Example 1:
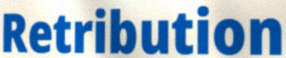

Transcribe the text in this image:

Retribution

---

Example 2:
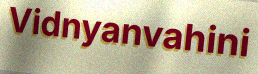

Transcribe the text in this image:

Vidnyanvahini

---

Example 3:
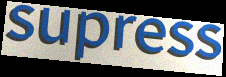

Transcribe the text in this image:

supress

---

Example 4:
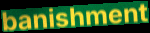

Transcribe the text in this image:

banishment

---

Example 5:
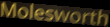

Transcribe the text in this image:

Molesworth